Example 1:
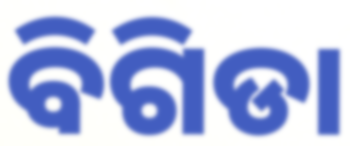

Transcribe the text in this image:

ବିଗିଡା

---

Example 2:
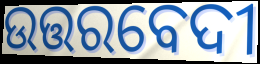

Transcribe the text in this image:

ଉତ୍ତରବେଦୀ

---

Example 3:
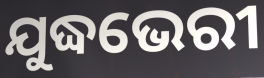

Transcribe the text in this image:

ଯୁଦ୍ଧଭେରୀ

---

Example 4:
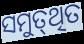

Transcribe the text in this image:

ସମୁତ୍‌ଥିତ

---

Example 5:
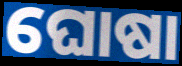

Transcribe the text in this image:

ଘୋଷା